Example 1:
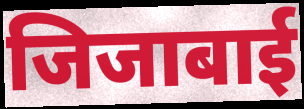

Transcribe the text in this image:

जिजाबाई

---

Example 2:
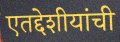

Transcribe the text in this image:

एतद्देशीयांची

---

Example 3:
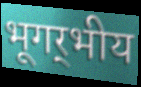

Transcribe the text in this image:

भूगर्भीय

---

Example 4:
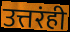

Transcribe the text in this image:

उत्तरंही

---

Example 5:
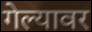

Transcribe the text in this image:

गेल्यावर